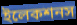
ইলেকশনস